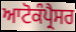
ਆਟੋਕੰਪ੍ਰੈਸਰ